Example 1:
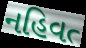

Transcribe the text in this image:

નહિવત્‍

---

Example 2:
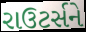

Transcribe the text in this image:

રાઉટર્સને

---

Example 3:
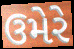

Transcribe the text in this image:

ઉમેરે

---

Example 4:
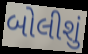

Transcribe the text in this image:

બોલીશું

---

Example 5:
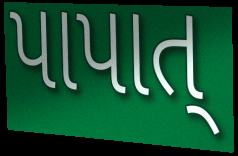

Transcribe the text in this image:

પાપાત્